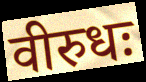
वीरुधः